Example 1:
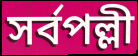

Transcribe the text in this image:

সৰ্বপল্লী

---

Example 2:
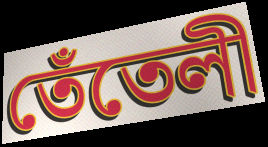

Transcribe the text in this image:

তেঁতেলী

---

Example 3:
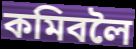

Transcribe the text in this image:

কমিবলৈ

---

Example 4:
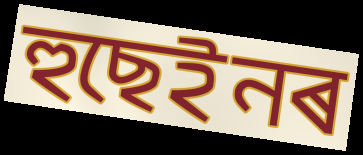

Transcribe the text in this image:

হুছেইনৰ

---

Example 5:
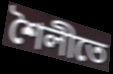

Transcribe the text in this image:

শৈলীতে